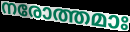
നരോത്തമാഃ